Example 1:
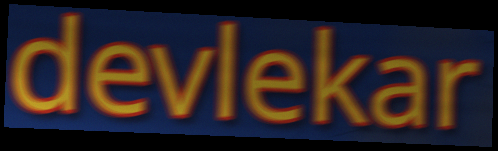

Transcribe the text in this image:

devlekar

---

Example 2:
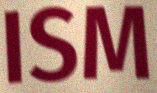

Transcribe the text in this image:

ISM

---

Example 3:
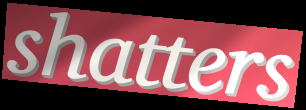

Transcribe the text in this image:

shatters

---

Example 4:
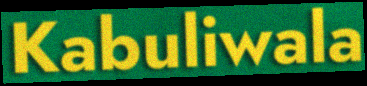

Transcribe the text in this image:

Kabuliwala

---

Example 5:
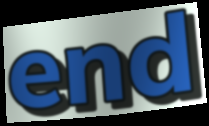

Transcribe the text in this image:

end